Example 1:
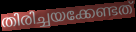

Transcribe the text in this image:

തിരിച്ചയക്കേണ്ടത്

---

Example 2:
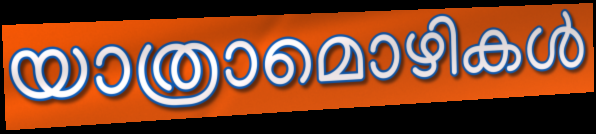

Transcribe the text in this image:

യാത്രാമൊഴികൾ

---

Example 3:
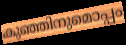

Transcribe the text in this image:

കുഞ്ഞിനുമൊപ്പം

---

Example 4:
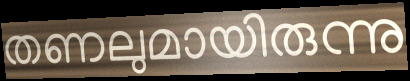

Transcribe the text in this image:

തണലുമായിരുന്നു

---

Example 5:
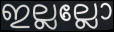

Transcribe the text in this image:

ഇല്ലല്ലോ